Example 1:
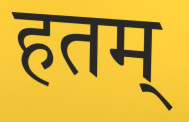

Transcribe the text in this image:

हतम्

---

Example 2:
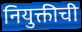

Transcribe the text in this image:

नियुक्तीची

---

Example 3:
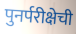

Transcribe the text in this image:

पुनर्परीक्षेची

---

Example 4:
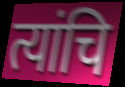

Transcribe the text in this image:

त्यांचि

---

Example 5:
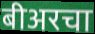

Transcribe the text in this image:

बीअरचा